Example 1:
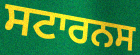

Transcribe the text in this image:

ਸਟਾਰਨਸ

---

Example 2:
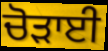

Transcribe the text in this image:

ਚੋੜਾਈ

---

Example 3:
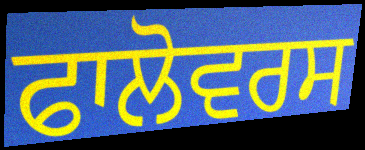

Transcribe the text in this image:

ਫਾਲੋਵਰਸ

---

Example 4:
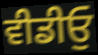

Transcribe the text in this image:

ਵੀਡੀਓੁ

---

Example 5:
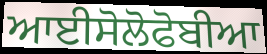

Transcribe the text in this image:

ਆਈਸੋਲੋਫੋਬੀਆ